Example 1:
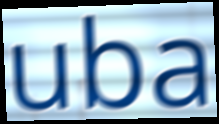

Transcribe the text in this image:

uba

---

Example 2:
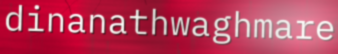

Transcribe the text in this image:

dinanathwaghmare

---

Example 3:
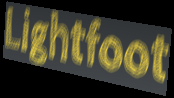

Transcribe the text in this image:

Lightfoot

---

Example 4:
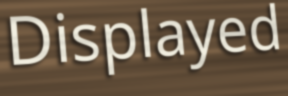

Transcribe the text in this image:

Displayed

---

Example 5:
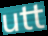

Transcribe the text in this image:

utt